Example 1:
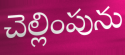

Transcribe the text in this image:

చెల్లింపును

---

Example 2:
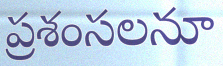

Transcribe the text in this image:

ప్రశంసలనూ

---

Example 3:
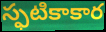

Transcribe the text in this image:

స్ఫటికాకార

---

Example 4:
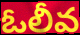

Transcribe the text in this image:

ఓలీవ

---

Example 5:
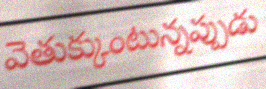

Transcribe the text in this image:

వెతుక్కుంటున్నప్పుడు